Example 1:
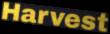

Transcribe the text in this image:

Harvest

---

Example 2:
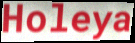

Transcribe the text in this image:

Holeya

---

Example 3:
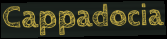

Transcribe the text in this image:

Cappadocia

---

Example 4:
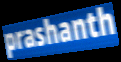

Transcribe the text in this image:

prashanth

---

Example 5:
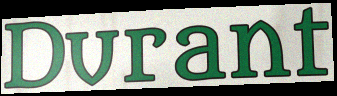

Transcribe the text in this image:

Durant